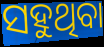
ସହୁଥିବା